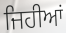
ਜਿਹੀਆਂ